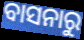
ବାସନାରୁ